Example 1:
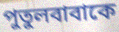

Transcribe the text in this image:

পুতুলবাবাকে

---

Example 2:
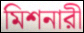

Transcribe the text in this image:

মিশনারী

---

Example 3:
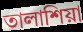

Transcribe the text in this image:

তালাশিয়া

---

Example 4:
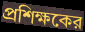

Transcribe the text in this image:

প্রশিক্ষকের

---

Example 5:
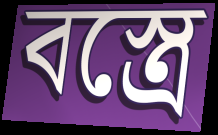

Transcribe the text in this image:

বস্ত্রে